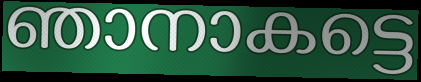
ഞാനാകട്ടെ